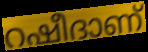
റഷീദാണ്